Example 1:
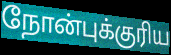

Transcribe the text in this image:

நோன்புக்குரிய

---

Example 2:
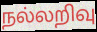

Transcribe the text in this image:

நல்லறிவு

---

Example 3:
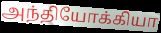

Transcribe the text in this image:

அந்தியோக்கியா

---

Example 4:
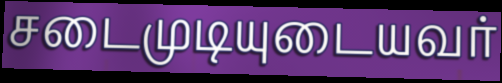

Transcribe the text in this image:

சடைமுடியுடையவர்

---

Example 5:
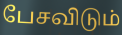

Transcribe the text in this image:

பேசவிடும்